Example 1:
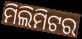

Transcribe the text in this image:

ମିଲିମିଟର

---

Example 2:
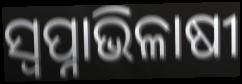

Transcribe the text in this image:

ସ୍ଵପ୍ନାଭିଳାଷୀ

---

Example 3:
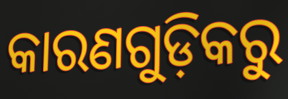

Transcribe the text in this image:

କାରଣଗୁଡ଼ିକରୁ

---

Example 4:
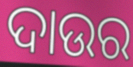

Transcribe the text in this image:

ଦାଉର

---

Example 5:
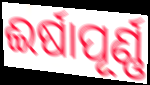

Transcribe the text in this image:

ଈର୍ଷାପୂର୍ଣ୍ଣ